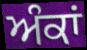
ਅੰਕਾਂ